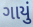
ગાયું